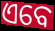
ଏବେ